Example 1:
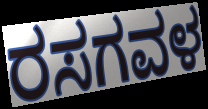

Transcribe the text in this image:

ರಸಗವಳ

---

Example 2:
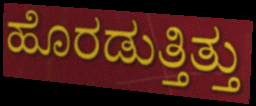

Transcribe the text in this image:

ಹೊರಡುತ್ತಿತ್ತು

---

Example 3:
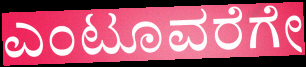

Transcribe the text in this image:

ಎಂಟೂವರೆಗೇ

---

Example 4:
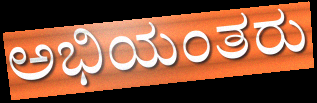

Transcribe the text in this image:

ಅಭಿಯಂತರು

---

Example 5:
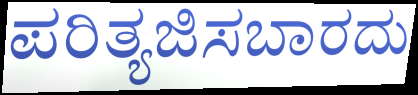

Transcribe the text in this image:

ಪರಿತ್ಯಜಿಸಬಾರದು